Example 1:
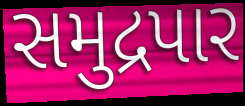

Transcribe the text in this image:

સમુદ્રપાર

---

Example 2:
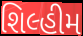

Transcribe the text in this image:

શિલ્હીમ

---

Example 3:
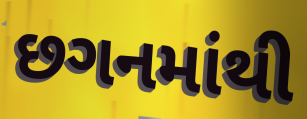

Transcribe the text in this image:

છગનમાંથી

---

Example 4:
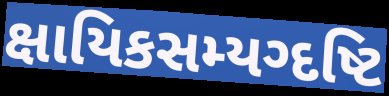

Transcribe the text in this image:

ક્ષાયિકસમ્યગ્દષ્ટિ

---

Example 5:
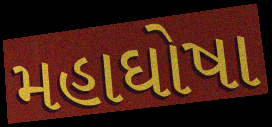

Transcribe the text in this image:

મહાઘોષા